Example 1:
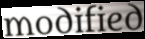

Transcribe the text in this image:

modified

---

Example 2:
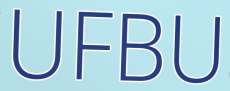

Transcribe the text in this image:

UFBU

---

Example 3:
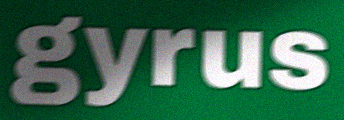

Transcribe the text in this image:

gyrus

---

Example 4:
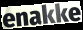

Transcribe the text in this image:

enakke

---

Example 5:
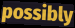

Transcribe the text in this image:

possibly